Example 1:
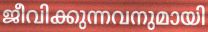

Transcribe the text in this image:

ജീവിക്കുന്നവനുമായി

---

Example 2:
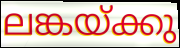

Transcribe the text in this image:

ലങ്കയ്ക്കു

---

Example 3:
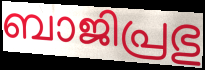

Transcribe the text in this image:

ബാജിപ്രഭു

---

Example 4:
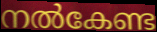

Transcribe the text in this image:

നൽകേണ്ട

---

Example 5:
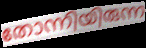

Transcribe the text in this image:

തോന്നിയിരുന്ന